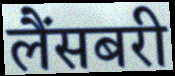
लैंसबरी